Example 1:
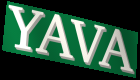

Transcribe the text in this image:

YAVA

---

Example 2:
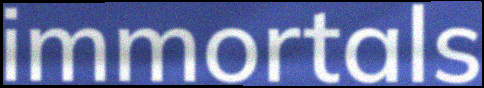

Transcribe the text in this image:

immortals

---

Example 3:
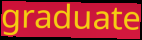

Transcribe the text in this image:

graduate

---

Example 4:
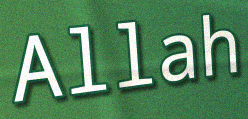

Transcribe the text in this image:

Allah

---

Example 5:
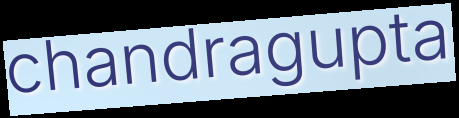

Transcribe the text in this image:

chandragupta